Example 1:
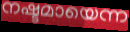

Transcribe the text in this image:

നഷ്ടമായെന്ന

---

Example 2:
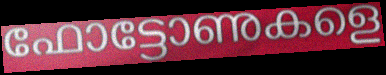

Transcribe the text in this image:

ഫോട്ടോണുകളെ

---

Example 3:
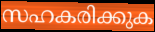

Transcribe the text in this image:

സഹകരിക്കുക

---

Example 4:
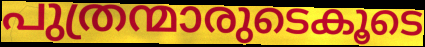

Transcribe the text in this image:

പുത്രന്മാരുടെകൂടെ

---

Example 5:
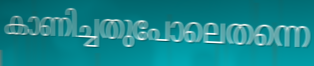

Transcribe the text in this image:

കാണിച്ചതുപോലെതന്നെ